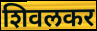
शिवलकर